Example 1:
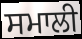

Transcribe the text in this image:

ਸਮਾਲੀ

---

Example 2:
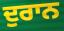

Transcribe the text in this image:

ਦੁਰਾਨ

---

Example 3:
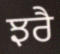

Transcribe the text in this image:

ਝਰੈ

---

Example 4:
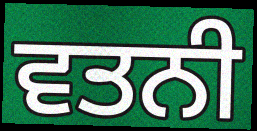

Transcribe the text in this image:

ਵਤਨੀ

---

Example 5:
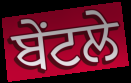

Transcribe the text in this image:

ਬੇਂਟਲੇ